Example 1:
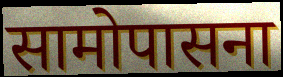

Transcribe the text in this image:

सामोपासना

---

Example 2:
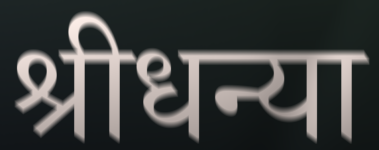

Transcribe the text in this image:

श्रीधन्या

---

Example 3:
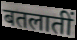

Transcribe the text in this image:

बतलातीं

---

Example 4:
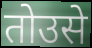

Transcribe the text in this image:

तोउसे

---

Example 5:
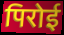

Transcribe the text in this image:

पिरोई